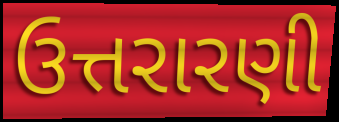
ઉત્તરારણી